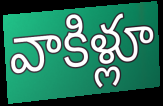
వాకిళ్లూ